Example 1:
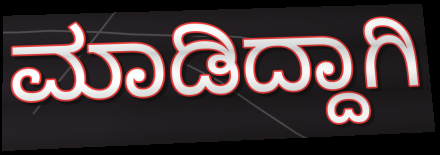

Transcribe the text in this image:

ಮಾಡಿದ್ದಾಗಿ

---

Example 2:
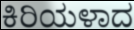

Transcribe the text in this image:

ಕಿರಿಯಳಾದ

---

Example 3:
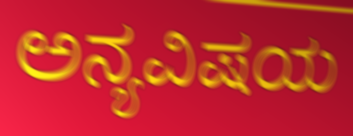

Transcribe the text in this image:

ಅನ್ಯವಿಷಯ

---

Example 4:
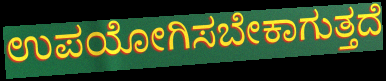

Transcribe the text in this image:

ಉಪಯೋಗಿಸಬೇಕಾಗುತ್ತದೆ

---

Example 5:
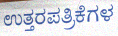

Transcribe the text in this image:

ಉತ್ತರಪತ್ರಿಕೆಗಳ